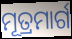
ମୂତ୍ରମାର୍ଗ